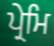
ਪ੍ਰੇਮਿ